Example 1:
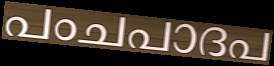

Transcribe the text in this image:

പംചപാദപ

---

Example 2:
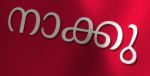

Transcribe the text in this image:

നാക്കു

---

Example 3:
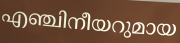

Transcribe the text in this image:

എഞ്ചിനീയറുമായ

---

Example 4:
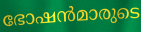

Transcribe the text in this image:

ഭോഷൻമാരുടെ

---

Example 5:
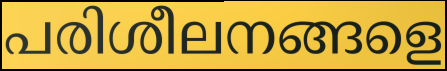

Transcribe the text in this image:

പരിശീലനങ്ങളെ